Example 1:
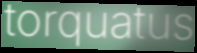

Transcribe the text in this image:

torquatus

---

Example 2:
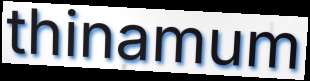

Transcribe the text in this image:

thinamum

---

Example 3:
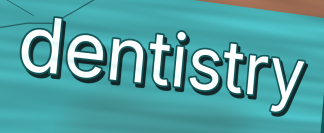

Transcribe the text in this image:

dentistry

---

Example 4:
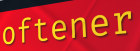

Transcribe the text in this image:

oftener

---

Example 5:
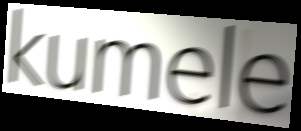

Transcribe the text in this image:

kumele